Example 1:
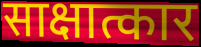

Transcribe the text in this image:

साक्षात्कार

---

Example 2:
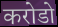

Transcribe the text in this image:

करोडो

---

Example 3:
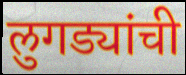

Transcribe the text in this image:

लुगड्यांची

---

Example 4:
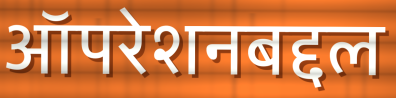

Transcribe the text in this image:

ऑपरेशनबद्दल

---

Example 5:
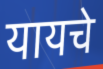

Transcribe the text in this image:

यायचे